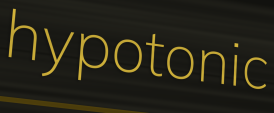
hypotonic